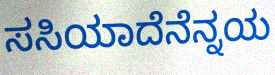
ಸಸಿಯಾದೆನೆನ್ನಯ